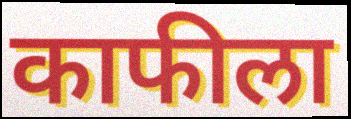
काफीला